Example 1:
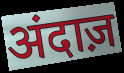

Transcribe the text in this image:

अंदाज़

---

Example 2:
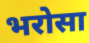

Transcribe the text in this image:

भरोसा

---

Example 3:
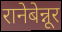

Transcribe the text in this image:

रानेबेन्नूर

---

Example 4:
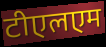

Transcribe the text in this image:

टीएलएम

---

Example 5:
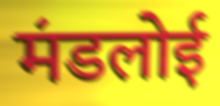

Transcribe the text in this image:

मंडलोई